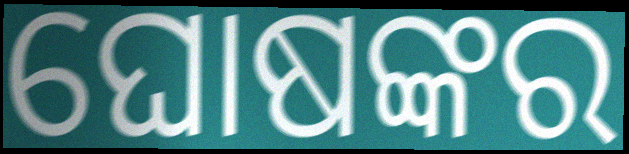
ଘୋଷଙ୍କର